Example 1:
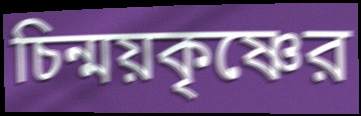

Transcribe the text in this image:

চিন্ময়কৃষ্ণের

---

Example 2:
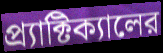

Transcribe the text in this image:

প্র্যাক্টিক্যালের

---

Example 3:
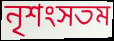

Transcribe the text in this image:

নৃশংসতম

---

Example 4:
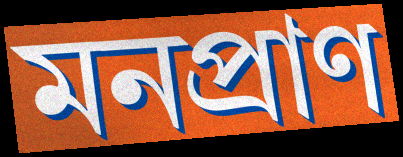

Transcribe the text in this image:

মনপ্রাণ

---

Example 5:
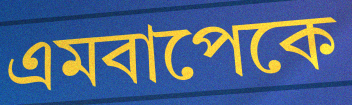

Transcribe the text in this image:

এমবাপেকে